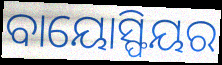
ବାୟୋସ୍ଫିୟର